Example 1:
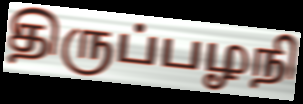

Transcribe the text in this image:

திருப்பழநி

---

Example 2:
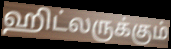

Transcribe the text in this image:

ஹிட்லருக்கும்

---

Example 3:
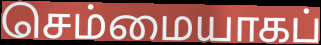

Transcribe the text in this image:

செம்மையாகப்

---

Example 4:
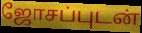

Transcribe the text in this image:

ஜோசப்புடன்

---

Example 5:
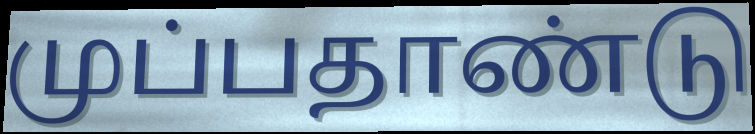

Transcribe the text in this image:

முப்பதாண்டு